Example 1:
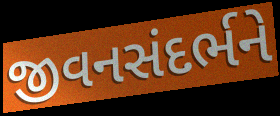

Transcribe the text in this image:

જીવનસંદર્ભને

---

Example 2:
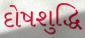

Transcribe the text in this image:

દોષશુદ્ધિ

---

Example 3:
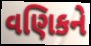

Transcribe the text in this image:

વણિકને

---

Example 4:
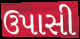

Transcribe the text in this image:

ઉપાસી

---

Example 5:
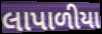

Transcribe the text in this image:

લાપાળીયા